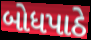
બોધપાઠે